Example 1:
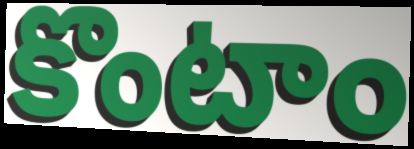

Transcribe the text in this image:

కొంటాం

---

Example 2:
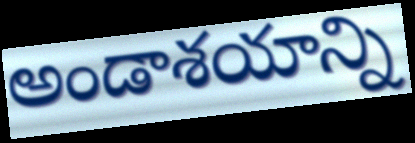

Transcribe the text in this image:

అండాశయాన్ని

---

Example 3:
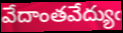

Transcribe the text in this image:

వేదాంతవేద్యుఁ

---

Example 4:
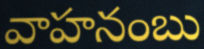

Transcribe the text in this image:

వాహనంబు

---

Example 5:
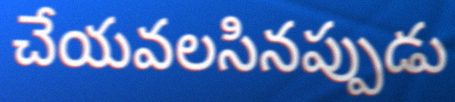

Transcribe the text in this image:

చేయవలసినప్పుడు